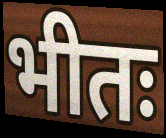
भीतः